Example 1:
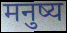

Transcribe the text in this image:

मनुष्‍य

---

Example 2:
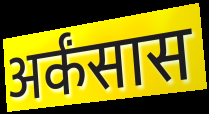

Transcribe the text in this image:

अर्कंसास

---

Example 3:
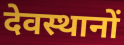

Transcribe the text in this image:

देवस्थानों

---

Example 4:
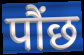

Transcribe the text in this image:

पौंछ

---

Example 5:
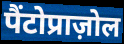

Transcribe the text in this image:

पैंटोप्राज़ोल